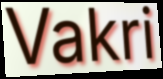
Vakri